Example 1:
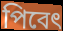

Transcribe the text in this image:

পিবেৎ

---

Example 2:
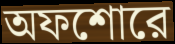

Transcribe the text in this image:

অফশোরে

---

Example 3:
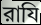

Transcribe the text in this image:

রাযি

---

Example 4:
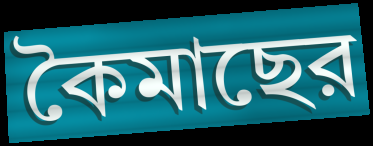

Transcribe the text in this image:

কৈমাছের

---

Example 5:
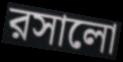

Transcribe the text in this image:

রসালো